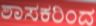
ಶಾಸಕರಿಂದ